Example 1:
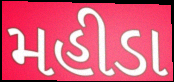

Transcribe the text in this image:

મહીડા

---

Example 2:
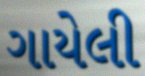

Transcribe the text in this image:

ગાયેલી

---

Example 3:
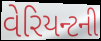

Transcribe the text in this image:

વેરિયન્ટની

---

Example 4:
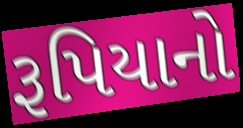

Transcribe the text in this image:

રૂપિયાનો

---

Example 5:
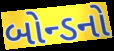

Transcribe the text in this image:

બોન્ડનો